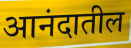
आनंदातील